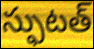
స్ఫుటత్